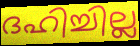
ദഹിച്ചില്ല